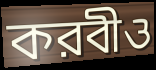
করবীও